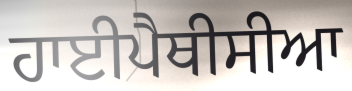
ਹਾਈਪੈਥੀਸੀਆ